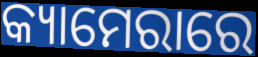
କ୍ୟାମେରାରେ